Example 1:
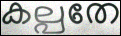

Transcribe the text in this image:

കല്പതേ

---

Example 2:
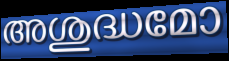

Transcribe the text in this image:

അശുദ്ധമോ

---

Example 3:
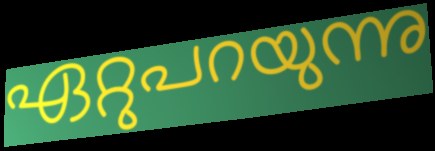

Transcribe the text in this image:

ഏറ്റുപറയുന്നു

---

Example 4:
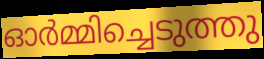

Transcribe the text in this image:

ഓർമ്മിച്ചെടുത്തു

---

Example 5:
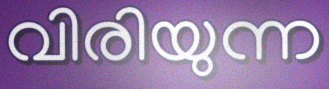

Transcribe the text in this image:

വിരിയുന്ന